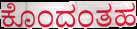
ಕೊಂದಂತಹ